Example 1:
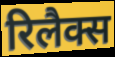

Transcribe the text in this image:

रिलैक्स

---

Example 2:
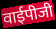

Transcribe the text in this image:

वाईपीजी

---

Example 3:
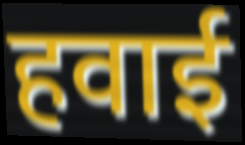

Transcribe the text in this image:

हवाई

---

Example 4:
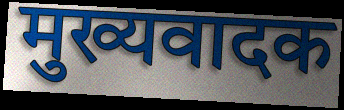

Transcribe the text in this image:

मुख्यवादक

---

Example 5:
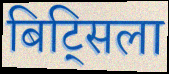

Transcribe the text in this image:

बिट्सिला